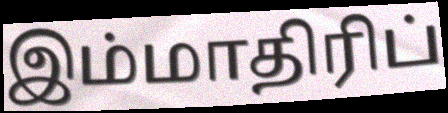
இம்மாதிரிப்